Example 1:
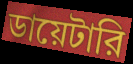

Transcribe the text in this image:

ডায়েটারি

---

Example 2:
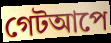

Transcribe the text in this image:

গেটআপে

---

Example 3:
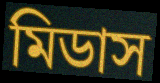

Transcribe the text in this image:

মিডাস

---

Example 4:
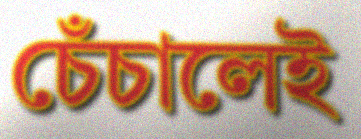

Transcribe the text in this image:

চেঁচালেই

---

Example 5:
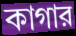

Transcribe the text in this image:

কাগার